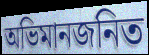
অভিমানজনিত